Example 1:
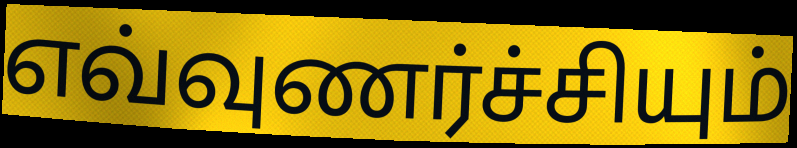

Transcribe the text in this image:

எவ்வுணர்ச்சியும்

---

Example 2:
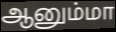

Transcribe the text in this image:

ஆனும்மா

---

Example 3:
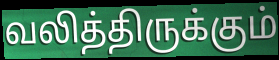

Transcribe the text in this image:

வலித்திருக்கும்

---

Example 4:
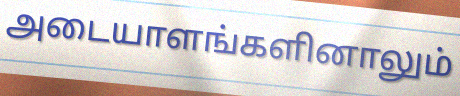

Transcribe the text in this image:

அடையாளங்களினாலும்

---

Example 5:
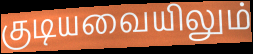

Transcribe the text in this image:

குடியவையிலும்